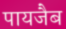
पायजैब